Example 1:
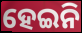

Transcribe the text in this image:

ହେଇନି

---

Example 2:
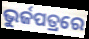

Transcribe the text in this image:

ଭୁର୍ଜପତ୍ରରେ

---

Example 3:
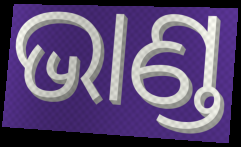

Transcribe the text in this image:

ଭାଣ୍ଡ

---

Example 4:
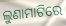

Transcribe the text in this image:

ଲୁଣାମାଟିରେ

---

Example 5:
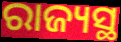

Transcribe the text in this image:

ରାଜ୍ୟସ୍ଥ